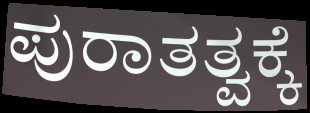
ಪುರಾತತ್ವಕ್ಕೆ